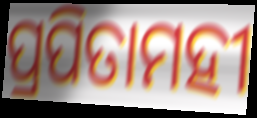
ପ୍ରପିତାମହୀ